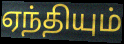
ஏந்தியும்